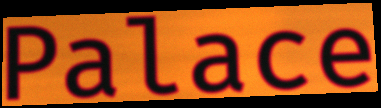
Palace